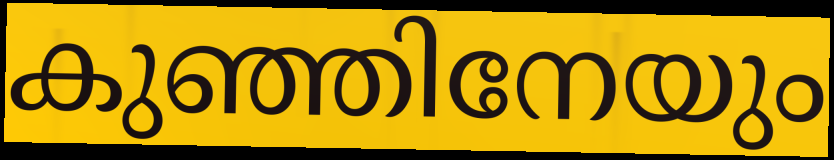
കുഞ്ഞിനേയും